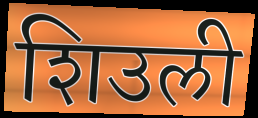
शिउली